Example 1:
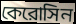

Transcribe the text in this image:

কেরোসিন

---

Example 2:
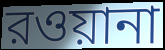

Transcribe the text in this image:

রওয়ানা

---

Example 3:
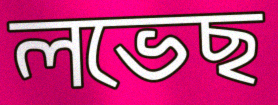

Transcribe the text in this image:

লভেছ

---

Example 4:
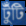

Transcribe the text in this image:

টুঁটি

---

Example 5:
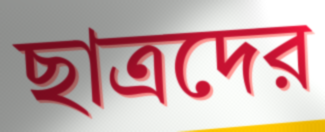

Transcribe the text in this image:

ছাত্রদের